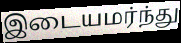
இடையமர்ந்து